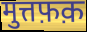
मुत्तफ़क़